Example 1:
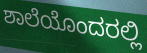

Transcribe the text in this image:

ಶಾಲೆಯೊಂದರಲ್ಲಿ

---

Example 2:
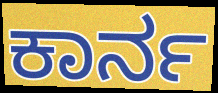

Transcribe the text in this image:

ಕಾರ್ನ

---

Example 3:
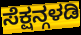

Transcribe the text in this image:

ಸೆಕ್ಷನ್ಗಳಡಿ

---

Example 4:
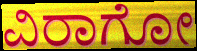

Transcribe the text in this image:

ವಿರಾಗೋ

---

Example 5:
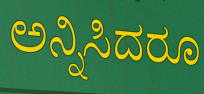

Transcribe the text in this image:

ಅನ್ನಿಸಿದರೂ